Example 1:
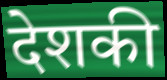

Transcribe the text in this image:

देशकी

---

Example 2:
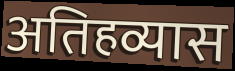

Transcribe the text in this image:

अतिहव्यास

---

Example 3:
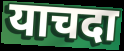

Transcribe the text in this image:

याचदा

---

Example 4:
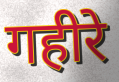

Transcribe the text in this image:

गहीरे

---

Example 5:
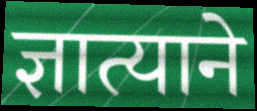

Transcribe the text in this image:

ज्ञात्याने